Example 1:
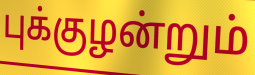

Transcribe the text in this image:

புக்குழன்றும்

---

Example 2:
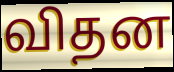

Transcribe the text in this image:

விதன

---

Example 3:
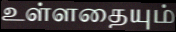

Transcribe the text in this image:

உள்ளதையும்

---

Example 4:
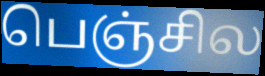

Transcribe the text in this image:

பெஞ்சில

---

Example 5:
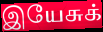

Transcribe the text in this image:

இயேசுக்